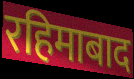
रहिमाबाद